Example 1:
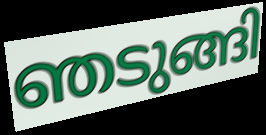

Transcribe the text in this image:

ഞടുങ്ങി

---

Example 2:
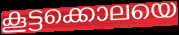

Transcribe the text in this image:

കൂട്ടക്കൊലയെ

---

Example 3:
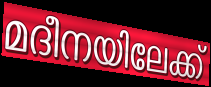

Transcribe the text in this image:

മദീനയിലേക്ക്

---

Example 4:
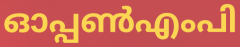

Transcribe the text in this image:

ഓപ്പൺഎംപി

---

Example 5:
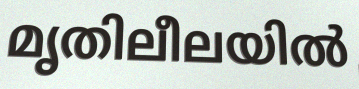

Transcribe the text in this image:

മൃതിലീലയിൽ